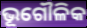
ଭୂଗୌଳିକ